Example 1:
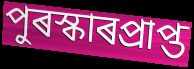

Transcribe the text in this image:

পুৰস্কাৰপ্ৰাপ্ত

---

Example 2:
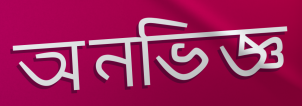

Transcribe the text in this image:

অনভিজ্ঞ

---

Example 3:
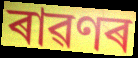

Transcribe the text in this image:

ৰাৱণৰ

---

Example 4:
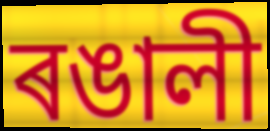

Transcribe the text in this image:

ৰঙালী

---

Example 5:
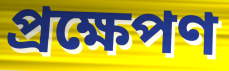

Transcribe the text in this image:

প্ৰক্ষেপণ